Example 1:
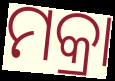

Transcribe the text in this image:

ମକ୍ରା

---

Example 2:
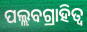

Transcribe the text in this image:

ପଲ୍ଲବଗ୍ରାହିତ୍ୱ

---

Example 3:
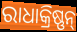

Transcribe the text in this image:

ରାଧାକ୍ରିଷ୍ଣନ୍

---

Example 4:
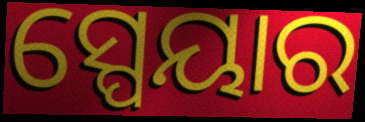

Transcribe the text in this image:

ସ୍ପେୟାର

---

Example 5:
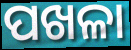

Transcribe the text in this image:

ପଖଳା